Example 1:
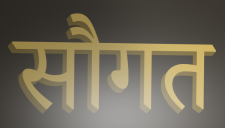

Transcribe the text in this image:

सौगत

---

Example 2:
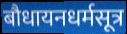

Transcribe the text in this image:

बौधायनधर्मसूत्र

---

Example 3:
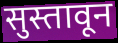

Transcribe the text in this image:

सुस्तावून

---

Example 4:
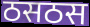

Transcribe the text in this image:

ठसठस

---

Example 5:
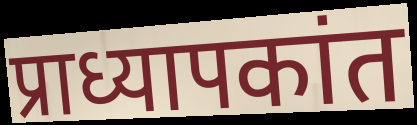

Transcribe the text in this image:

प्राध्यापकांत